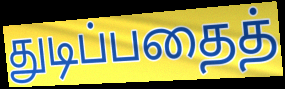
துடிப்பதைத்